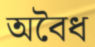
অবৈধ